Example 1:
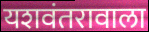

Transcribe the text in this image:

यशवंतरावाला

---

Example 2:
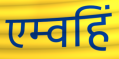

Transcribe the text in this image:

एम्वहिं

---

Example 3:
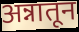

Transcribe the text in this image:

अन्नातून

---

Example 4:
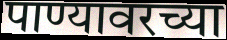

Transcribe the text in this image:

पाण्यावरच्या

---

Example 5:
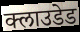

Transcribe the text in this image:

क्लाउडेड